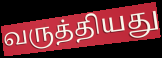
வருத்தியது